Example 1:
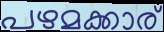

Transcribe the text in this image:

പഴമക്കാര്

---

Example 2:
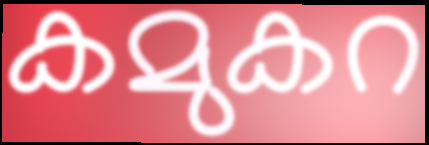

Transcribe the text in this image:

കമുകറ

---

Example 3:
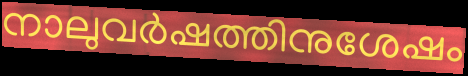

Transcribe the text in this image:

നാലുവർഷത്തിനുശേഷം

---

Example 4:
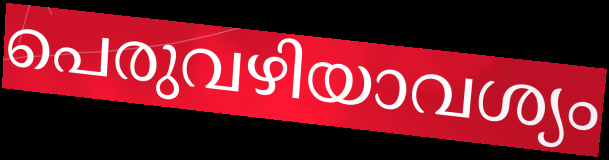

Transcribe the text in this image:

പെരുവഴിയാവശ്യം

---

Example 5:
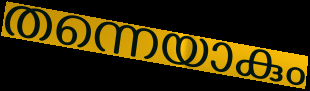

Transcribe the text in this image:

തന്നെയാകും